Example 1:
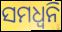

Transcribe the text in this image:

ସମଧ୍ୱନି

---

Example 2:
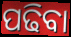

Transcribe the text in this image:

ପଢିବା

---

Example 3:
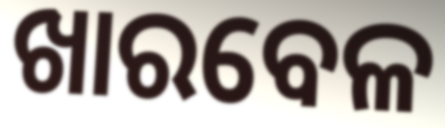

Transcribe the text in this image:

ଖାରବେଳ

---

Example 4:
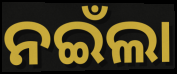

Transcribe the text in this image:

ନଇଁଲା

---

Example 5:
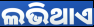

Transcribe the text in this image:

ଲଭିଥାଏ